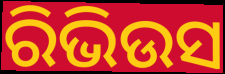
ରିଭିଉସ